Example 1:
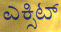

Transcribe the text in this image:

ಎಕ್ಸಿಟ್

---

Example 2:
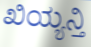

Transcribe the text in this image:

ಖಿಯ್ಯನ್ತಿ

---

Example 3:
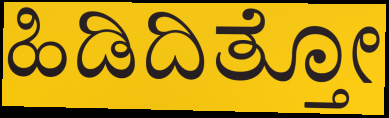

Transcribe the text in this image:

ಹಿಡಿದಿತ್ತೋ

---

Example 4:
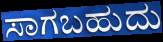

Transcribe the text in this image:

ಸಾಗಬಹುದು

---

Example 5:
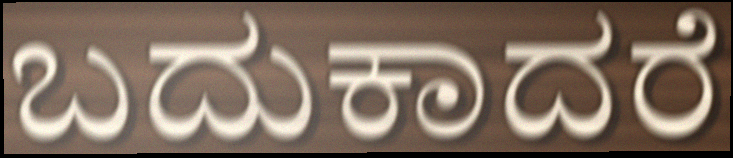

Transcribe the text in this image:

ಬದುಕಾದರೆ